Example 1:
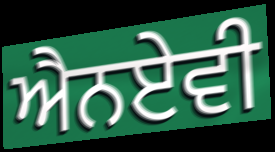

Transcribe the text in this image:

ਐਨਏਵੀ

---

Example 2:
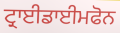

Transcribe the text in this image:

ਟ੍ਰਾਈਡਾਈਮਫੋਨ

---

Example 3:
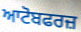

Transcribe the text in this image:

ਆਟੋਬਫਰਜ਼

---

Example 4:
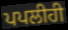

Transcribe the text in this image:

ਪਪਲੀਹੀ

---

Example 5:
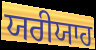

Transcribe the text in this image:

ਯਰੀਯਾਹ